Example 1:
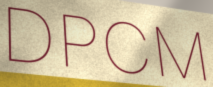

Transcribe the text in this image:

DPCM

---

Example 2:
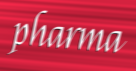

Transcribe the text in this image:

pharma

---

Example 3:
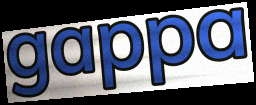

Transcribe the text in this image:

gappa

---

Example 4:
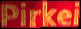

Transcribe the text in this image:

Pirkei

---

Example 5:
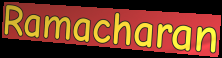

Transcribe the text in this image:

Ramacharan